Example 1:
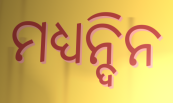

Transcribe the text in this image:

ମଧ୍ୟନ୍ଦିନ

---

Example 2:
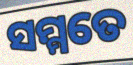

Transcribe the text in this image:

ସମ୍ମତେ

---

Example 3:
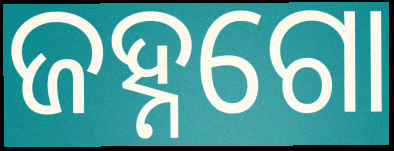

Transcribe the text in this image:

ଜହ୍ନଗୋ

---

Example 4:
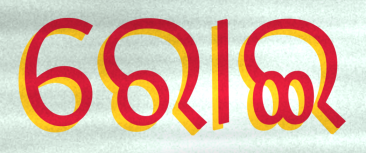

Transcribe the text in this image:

ରୋଇ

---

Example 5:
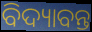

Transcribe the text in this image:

ବିଦ୍ୟାବନ୍ତ